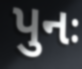
પુનઃ